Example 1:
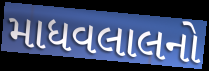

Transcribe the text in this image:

માધવલાલનો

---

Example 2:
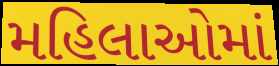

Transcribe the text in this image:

મહિલાઓમાં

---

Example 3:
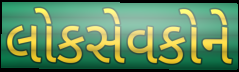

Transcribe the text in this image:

લોકસેવકોને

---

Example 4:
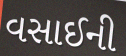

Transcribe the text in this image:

વસાઈની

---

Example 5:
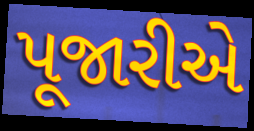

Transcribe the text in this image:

પૂજારીએ